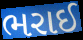
ભરાઈ